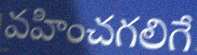
వహించగలిగే